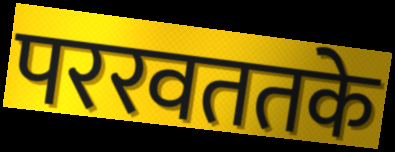
पररवततके